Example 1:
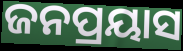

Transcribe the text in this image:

ଜନପ୍ରୟାସ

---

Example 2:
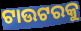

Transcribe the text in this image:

ଟାଉଟରକୁ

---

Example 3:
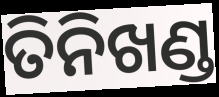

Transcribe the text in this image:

ତିନିଖଣ୍ଡ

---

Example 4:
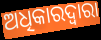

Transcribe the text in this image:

ଅଧିକାରଦ୍ୱାରା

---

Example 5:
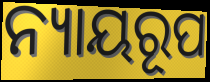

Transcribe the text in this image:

ନ୍ୟାୟରୂପ